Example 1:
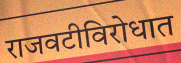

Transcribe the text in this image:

राजवटीविरोधात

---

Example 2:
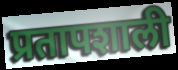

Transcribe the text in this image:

प्रतापशाली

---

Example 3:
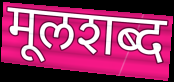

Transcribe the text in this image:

मूलशब्द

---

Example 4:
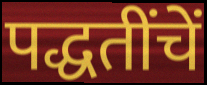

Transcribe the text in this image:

पद्धतींचें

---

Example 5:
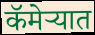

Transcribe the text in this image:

कॅमेर्‍यात